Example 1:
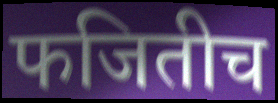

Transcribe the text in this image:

फजितीच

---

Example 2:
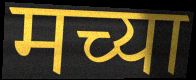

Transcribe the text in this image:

मच्या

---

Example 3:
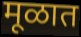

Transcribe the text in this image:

मूळात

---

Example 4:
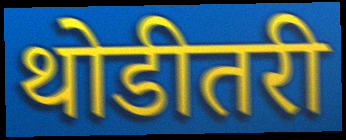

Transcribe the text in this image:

थोडीतरी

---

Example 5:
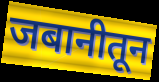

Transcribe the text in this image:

जबानीतून